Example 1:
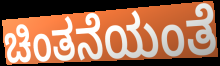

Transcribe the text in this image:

ಚಿಂತನೆಯಂತೆ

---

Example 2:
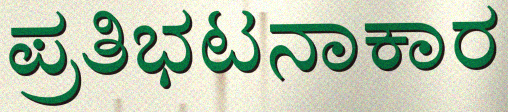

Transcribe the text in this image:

ಪ್ರತಿಭಟನಾಕಾರ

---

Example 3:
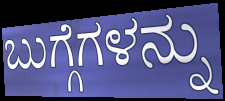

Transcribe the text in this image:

ಬುಗ್ಗೆಗಳನ್ನು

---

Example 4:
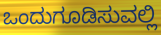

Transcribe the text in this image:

ಒಂದುಗೂಡಿಸುವಲ್ಲಿ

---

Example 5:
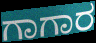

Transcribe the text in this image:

ಗಾಗಾರ